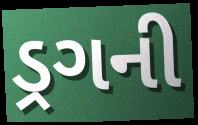
ડ્રગની